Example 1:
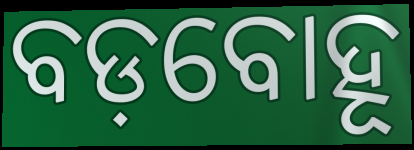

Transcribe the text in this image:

ବଡ଼ବୋହୂ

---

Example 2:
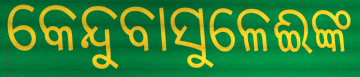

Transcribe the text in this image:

କେନ୍ଦୁବାସୁଳେଈଙ୍କ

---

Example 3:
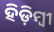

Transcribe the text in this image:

ହିଡ଼ିମ୍ବୀ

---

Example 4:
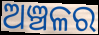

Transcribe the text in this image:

ଅଞ୍ଚଳର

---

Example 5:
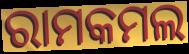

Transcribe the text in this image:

ରାମକମଲ